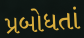
પ્રબોધતાં